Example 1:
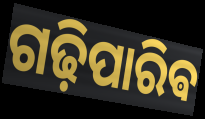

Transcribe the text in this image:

ଗଢ଼ିପାରିଵ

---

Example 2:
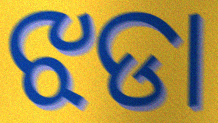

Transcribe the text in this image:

ଝଡା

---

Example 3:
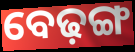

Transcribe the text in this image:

ବେଢ଼ଙ୍ଗ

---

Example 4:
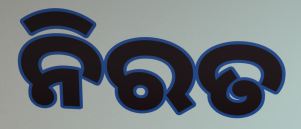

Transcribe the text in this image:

ନିରତ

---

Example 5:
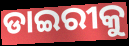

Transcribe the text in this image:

ଡାଇରୀକୁ